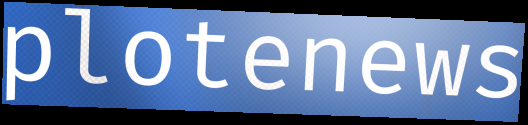
plotenews